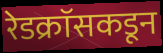
रेडक्रॉसकडून